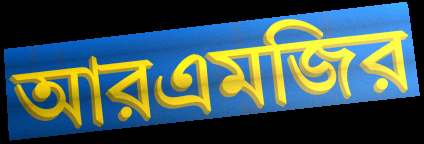
আরএমজির